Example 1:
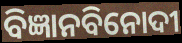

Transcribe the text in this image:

ବିଜ୍ଞାନବିନୋଦୀ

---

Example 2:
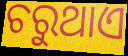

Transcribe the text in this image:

ଚରୁଥାଏ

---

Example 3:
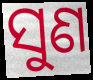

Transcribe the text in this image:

ସୁଣ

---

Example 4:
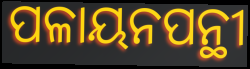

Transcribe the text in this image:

ପଳାୟନପନ୍ଥୀ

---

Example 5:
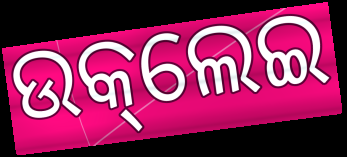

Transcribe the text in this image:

ଉକ୍‌ଲେଇ